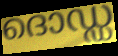
ദൊഡ്ഡ